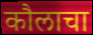
कौलाचा